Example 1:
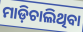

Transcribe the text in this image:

ମାଡ଼ିଚାଲିଥିବା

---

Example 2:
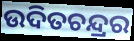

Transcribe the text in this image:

ଉଦିତଚନ୍ଦ୍ରର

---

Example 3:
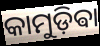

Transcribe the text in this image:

କାମୁଡ଼ିଵା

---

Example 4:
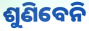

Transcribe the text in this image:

ଶୁଣିବେନି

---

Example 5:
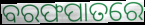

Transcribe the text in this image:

ବରଫପାତରେ